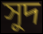
সুদ